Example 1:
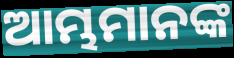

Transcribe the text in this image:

ଆମ୍ଭମାନଙ୍କ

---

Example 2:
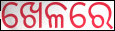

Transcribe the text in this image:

ଖେଳରେ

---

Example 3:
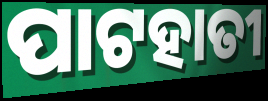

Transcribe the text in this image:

ପାଟହାତୀ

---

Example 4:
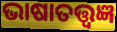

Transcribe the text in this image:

ଭାଷାତତ୍ତ୍ୱଜ୍ଞ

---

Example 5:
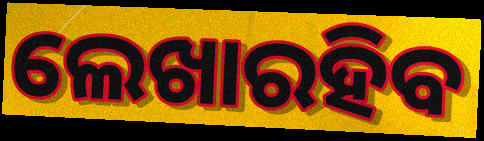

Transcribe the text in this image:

ଲେଖାରହିବ